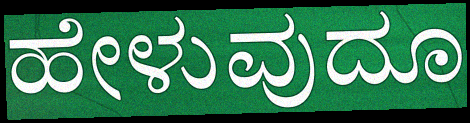
ಹೇಳುವುದೂ